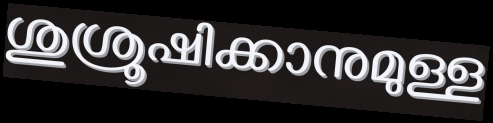
ശുശ്രൂഷിക്കാനുമുള്ള